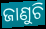
ଜାଣୁଚି